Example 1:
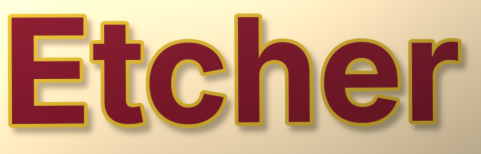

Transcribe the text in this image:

Etcher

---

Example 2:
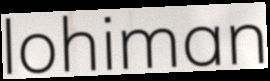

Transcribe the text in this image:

lohiman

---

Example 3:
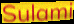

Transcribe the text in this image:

Sulami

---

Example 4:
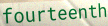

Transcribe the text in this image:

fourteenth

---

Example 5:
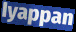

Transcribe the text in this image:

Iyappan